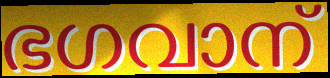
ഭഗവാന്